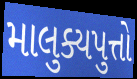
માલુક્યપુત્તો